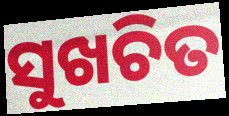
ସୁଖଚିତ